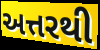
અત્તરથી